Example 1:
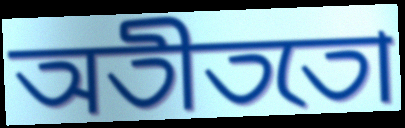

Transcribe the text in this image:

অতীততো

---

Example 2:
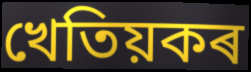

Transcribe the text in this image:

খেতিয়কৰ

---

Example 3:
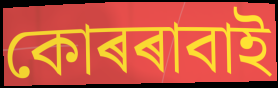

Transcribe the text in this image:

কোৰৰাবাই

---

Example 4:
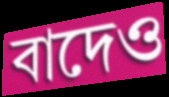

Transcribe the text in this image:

বাদেও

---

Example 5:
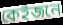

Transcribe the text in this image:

কেইজনে